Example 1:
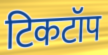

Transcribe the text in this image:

टिकटॉप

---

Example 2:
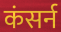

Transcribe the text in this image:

कंसर्न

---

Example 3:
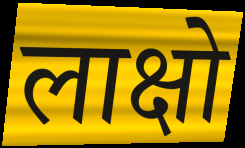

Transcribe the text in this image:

लाक्षो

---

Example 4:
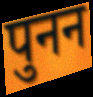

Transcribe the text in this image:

पुनन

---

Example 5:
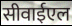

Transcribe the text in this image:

सीवाईएल